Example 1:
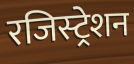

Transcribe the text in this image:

रजिस्‍ट्रेशन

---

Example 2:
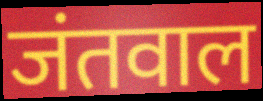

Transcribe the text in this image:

जंतवाल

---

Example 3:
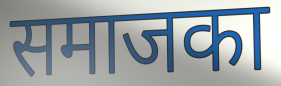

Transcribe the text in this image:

समाजका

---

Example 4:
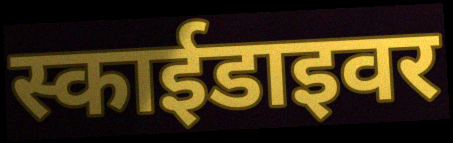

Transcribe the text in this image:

स्काईडाइवर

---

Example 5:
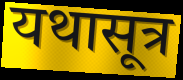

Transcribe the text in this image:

यथासूत्र